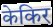
केकिर